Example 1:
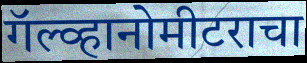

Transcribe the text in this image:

गॅल्व्हानोमीटराचा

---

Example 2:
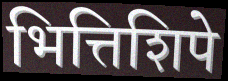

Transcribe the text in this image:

भित्तिशिपे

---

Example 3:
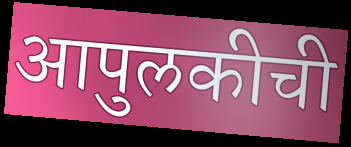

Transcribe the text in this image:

आपुलकीची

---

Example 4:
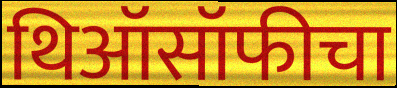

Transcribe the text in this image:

थिऑसॉफीचा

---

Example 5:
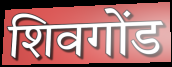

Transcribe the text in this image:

शिवगोंड